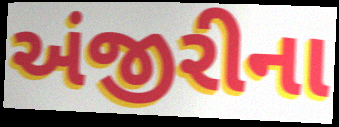
અંજીરીના